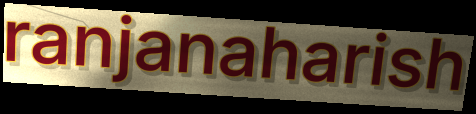
ranjanaharish